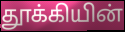
தூக்கியின்